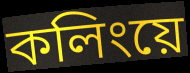
কলিংয়ে